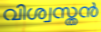
വിശ്വസ്തൻ